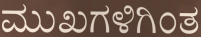
ಮುಖಗಳಿಗಿಂತ